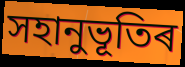
সহানুভূতিৰ